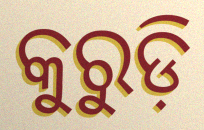
କୁରୁଡ଼ି